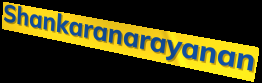
Shankaranarayanan